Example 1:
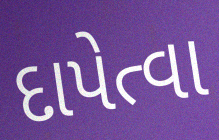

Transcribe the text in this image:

દાપેત્વા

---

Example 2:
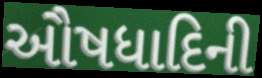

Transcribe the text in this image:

ઔષધાદિની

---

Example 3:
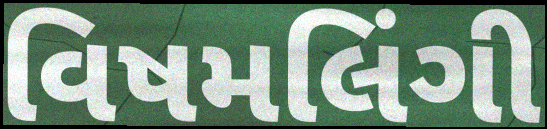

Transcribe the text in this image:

વિષમલિંગી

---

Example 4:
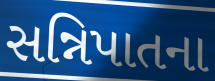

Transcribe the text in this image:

સન્નિપાતના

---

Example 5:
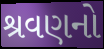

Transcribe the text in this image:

શ્રવણનો